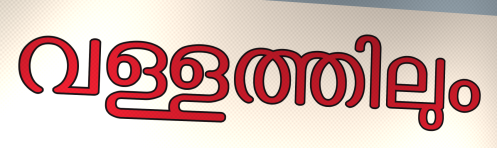
വള്ളത്തിലും